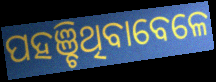
ପହଞ୍ଚିଥିବାବେଳେ